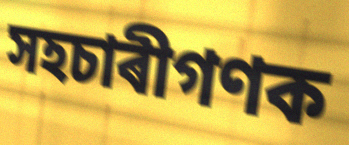
সহচাৰীগণক